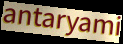
antaryami